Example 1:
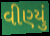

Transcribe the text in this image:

વીણ્યું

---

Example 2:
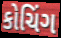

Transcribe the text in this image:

કોચિંગ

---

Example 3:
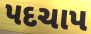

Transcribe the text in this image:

પદચાપ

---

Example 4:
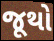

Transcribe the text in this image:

જૂથો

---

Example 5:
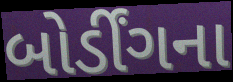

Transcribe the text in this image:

બોર્ડીંગના